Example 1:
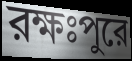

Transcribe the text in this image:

রক্ষঃপুরে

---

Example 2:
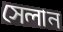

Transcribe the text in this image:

সেলান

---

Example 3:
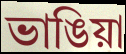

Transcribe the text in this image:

ভাঙিয়া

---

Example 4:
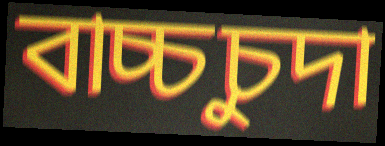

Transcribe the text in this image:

বাচ্চচুদা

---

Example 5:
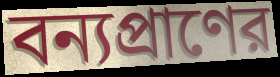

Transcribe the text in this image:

বন্যপ্রাণের